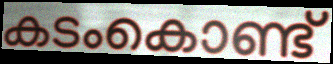
കടംകൊണ്ട്